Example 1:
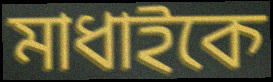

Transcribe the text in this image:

মাধাইকে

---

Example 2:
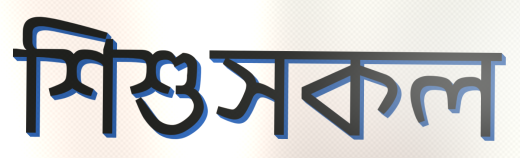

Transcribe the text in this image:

শিশুসকল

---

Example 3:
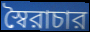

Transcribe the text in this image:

স্বৈরাচার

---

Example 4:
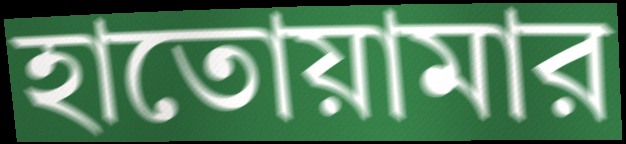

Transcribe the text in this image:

হাতোয়ামার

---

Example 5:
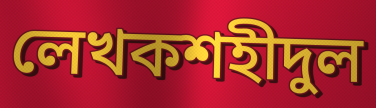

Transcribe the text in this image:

লেখকশহীদুল